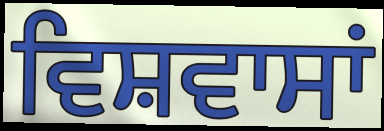
ਵਿਸ਼ਵਾਸਾਂ